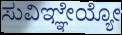
ಸುವಿಞ್ಞೇಯ್ಯೋ